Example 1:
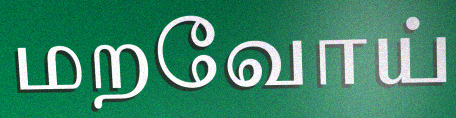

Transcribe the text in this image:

மறவோய்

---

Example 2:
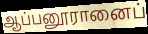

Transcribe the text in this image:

ஆப்பனூரானைப்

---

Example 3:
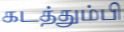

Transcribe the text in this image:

கடத்தும்பி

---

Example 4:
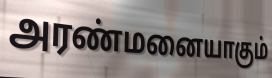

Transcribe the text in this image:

அரண்மனையாகும்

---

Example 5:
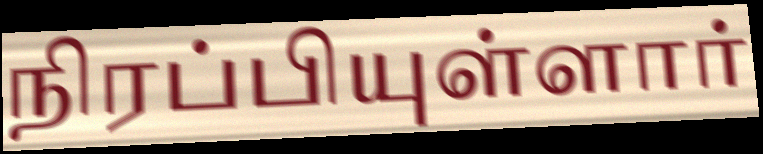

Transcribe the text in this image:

நிரப்பியுள்ளார்